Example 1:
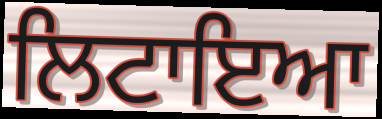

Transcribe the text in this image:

ਲਿਟਾਇਆ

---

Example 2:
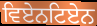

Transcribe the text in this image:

ਵਿਏਨਟਿਏਨ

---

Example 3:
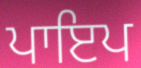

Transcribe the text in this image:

ਪਾਇਪ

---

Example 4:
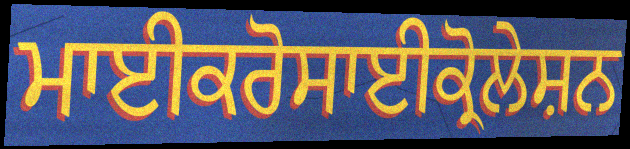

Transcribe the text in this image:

ਮਾਈਕਰੋਸਾਈਕ੍ਰੋਲੇਸ਼ਨ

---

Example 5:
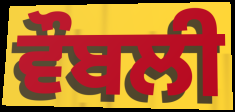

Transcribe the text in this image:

ਵੌਬਲੀ